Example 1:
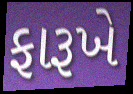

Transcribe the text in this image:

ફારૂખે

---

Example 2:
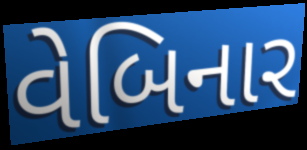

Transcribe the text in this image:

વેબિનાર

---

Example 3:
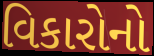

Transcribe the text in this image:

વિકારોનો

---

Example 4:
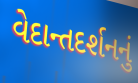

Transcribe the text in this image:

વેદાન્તદર્શનનું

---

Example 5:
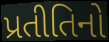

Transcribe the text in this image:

પ્રતીતિનો